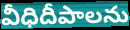
వీధిదీపాలను